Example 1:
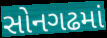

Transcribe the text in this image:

સોનગઢમાં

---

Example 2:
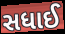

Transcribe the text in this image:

સધાઈ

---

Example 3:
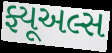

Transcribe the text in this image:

ફ્યૂઅલ્સ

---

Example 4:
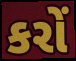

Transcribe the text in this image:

કરોં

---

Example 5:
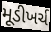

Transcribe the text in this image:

મૂડીખર્ચ